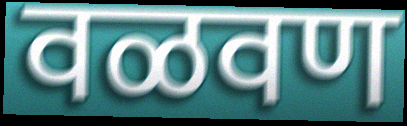
वळवण